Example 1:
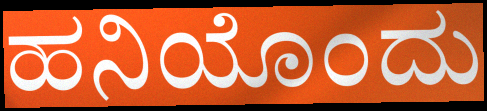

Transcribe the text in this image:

ಹನಿಯೊಂದು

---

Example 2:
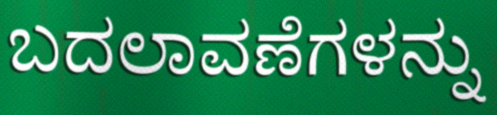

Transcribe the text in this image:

ಬದಲಾವಣೆಗಳನ್ನು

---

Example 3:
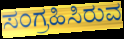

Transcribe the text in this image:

ಸಂಗ್ರಹಿಸಿರುವ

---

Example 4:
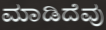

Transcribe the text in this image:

ಮಾಡಿದೆವು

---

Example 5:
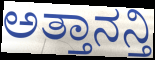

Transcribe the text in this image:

ಅತ್ತಾನನ್ತಿ